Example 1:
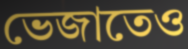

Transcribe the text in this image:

ভেজাতেও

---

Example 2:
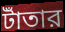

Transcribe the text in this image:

টাঁতার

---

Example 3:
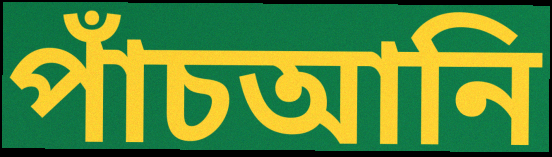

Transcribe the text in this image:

পাঁচআনি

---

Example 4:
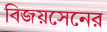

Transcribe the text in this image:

বিজয়সেনের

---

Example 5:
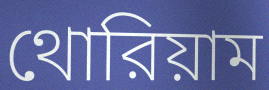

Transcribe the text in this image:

থোরিয়াম